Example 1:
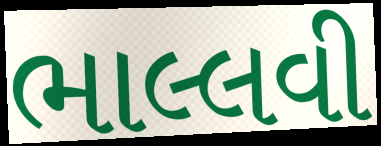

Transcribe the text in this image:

ભાલ્લવી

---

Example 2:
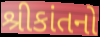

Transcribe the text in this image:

શ્રીકાંતનો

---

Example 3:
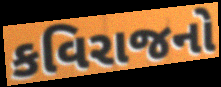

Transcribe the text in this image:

કવિરાજનો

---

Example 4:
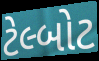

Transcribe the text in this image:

ટેલ્બોટ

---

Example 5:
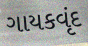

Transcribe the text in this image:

ગાયકવૃંદ